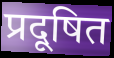
प्रदूषित